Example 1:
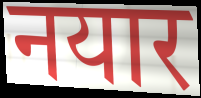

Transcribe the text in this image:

नयार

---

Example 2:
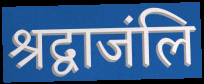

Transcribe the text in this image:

श्रद्वाजंलि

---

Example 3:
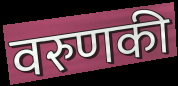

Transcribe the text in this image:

वरुणकी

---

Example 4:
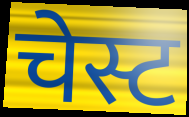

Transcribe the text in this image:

चेस्ट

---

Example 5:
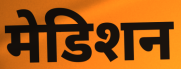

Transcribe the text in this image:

मेडिशन